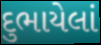
દુભાયેલાં